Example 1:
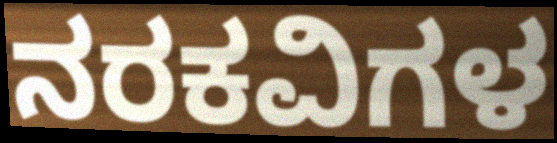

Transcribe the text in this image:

ನರಕವಿಗಳ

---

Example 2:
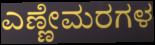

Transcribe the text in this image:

ಎಣ್ಣೇಮರಗಳ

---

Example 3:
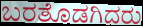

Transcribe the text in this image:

ಬರತೊಡಗಿದರು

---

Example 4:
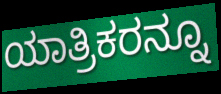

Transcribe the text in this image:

ಯಾತ್ರಿಕರನ್ನೂ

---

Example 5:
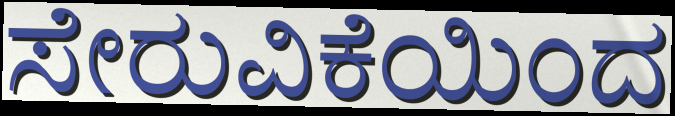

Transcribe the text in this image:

ಸೇರುವಿಕೆಯಿಂದ